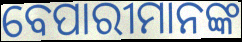
ବେପାରୀମାନଙ୍କ